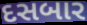
દસબાર